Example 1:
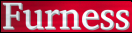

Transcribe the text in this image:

Furness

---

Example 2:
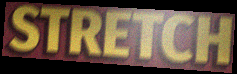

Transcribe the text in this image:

STRETCH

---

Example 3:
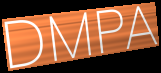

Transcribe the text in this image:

DMPA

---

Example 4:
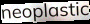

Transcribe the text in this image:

neoplastic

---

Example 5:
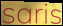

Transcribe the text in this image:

saris